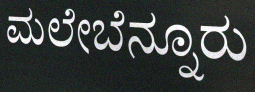
ಮಲೇಬೆನ್ನೂರು